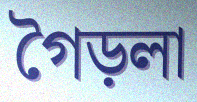
গৈড়লা